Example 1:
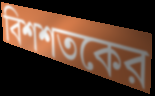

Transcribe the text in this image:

বিশশতকের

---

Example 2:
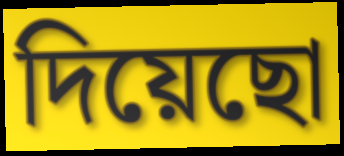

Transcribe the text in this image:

দিয়েছো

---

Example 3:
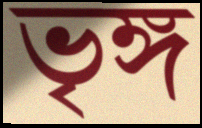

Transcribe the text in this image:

ভৃঙ্গ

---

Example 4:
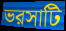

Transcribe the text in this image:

ভরসাটি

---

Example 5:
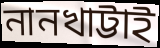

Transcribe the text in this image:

নানখাট্টাই